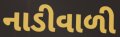
નાડીવાળી